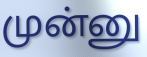
முன்னு